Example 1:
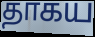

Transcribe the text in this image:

தாகய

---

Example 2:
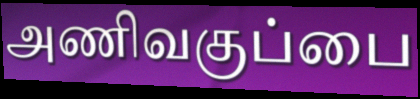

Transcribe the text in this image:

அணிவகுப்பை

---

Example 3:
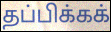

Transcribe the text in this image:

தப்பிக்கக்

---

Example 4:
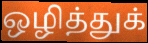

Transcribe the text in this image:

ஒழித்துக்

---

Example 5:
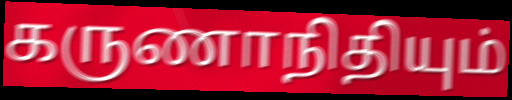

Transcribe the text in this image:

கருணாநிதியும்